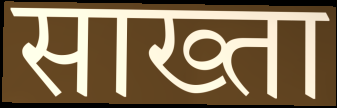
साख्ता